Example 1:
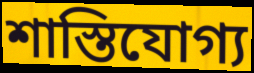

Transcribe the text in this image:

শাস্তিযোগ্য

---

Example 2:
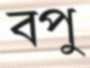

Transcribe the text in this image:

বপু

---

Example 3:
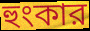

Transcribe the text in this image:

হুংকার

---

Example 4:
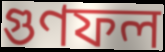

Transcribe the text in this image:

গুণফল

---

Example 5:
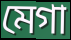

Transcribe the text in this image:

মেগা